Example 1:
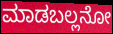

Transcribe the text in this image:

ಮಾಡಬಲ್ಲನೋ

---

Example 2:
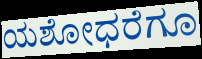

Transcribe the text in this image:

ಯಶೋಧರೆಗೂ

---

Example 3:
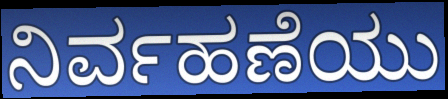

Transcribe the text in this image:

ನಿರ್ವಹಣೆಯು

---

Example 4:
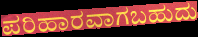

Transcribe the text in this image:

ಪರಿಹಾರವಾಗಬಹುದು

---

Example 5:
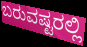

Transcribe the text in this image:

ಬರುವಷ್ಟರಲ್ಲಿ